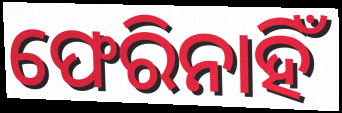
ଫେରିନାହିଁ